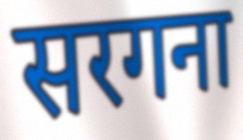
सरगना